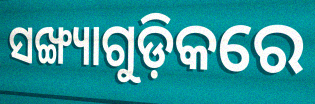
ସଙ୍ଖ୍ୟାଗୁଡ଼ିକରେ